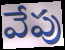
వేపు